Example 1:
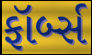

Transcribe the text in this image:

ફૉર્બ્સ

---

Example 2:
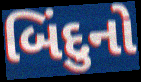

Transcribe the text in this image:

બિંદુનો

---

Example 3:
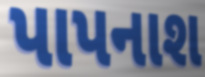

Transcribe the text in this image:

પાપનાશ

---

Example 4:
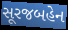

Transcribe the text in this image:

સૂરજબહેન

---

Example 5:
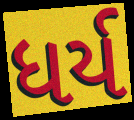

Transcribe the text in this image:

ધર્ય